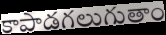
కాపాడగలుగుతాం